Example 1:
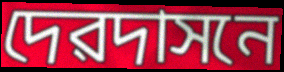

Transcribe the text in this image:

দেৱদাসনে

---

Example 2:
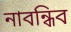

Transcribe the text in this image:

নাবন্ধিব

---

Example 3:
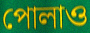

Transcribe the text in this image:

পোলাও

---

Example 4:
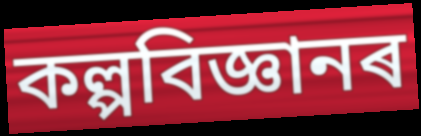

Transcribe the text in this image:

কল্পবিজ্ঞানৰ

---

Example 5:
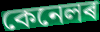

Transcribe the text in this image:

কেনেলৰ